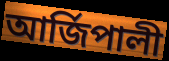
আৰ্জিপালী